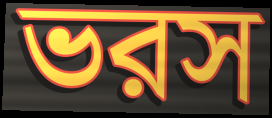
ভরস